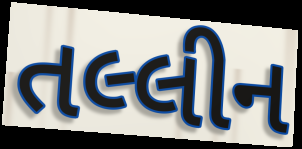
તલ્લીન